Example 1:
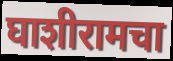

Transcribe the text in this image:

घाशीरामचा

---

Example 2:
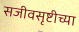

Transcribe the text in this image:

सजीवसृष्टीच्या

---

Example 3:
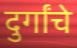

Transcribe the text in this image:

दुर्गांचे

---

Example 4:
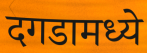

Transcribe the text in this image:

दगडामध्ये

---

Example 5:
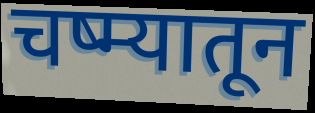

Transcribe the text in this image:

चष्म्यातून